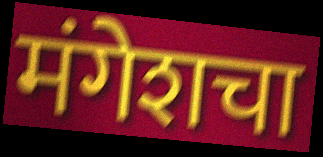
मंगेशचा